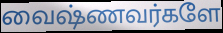
வைஷ்ணவர்களே